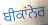
ਬੀਕਾਂਨੇਰ